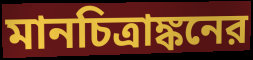
মানচিত্রাঙ্কনের